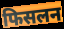
फिसलन